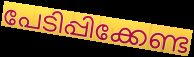
പേടിപ്പിക്കേണ്ട